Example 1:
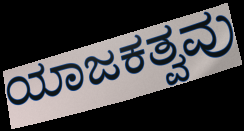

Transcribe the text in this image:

ಯಾಜಕತ್ವವು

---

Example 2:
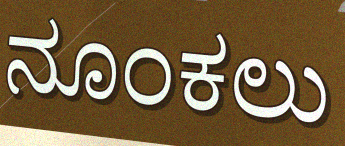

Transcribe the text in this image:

ನೂಂಕಲು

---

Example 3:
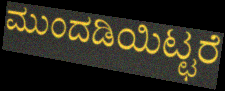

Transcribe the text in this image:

ಮುಂದಡಿಯಿಟ್ಟರೆ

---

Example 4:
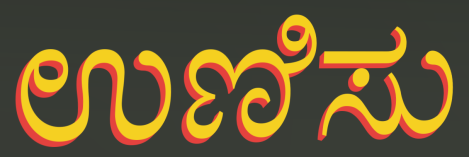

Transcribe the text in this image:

ಉಣಿಸು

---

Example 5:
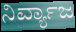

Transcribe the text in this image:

ನಿರ್ವ್ಯಾಜ